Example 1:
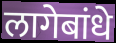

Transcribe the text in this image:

लागेबांधे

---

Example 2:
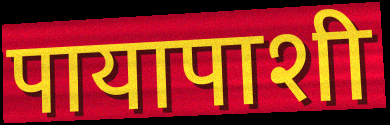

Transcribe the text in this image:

पायापाशी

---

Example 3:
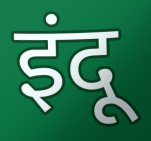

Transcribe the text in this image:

इंदू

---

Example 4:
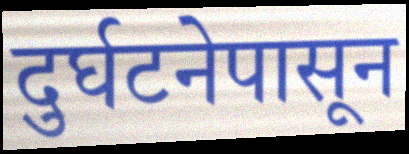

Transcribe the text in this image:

दुर्घटनेपासून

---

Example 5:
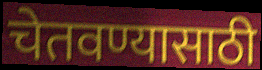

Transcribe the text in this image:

चेतवण्यासाठी